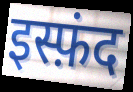
इस्फ़ंद